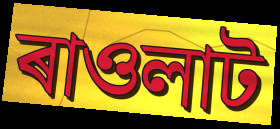
ৰাওলাট